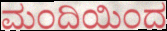
ಮಂದಿಯಿಂದ